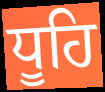
ਧੂਹਿ